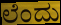
ಲೆಂದು